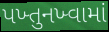
પખ્તુનખ્વામાં